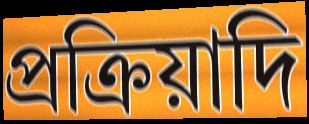
প্রক্রিয়াদি